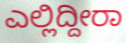
ಎಲ್ಲಿದ್ದೀರಾ